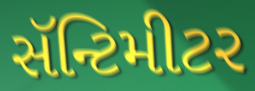
સૅન્ટિમીટર